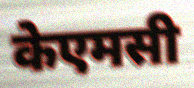
केएमसी